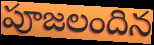
పూజలందిన